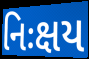
નિઃક્ષય